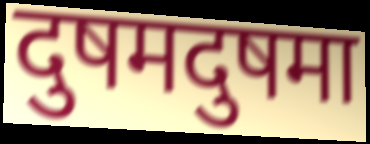
दुषमदुषमा